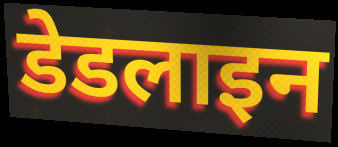
डेडलाइन